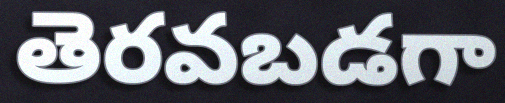
తెరవబడగా